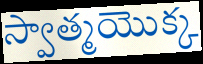
స్వాత్మయొక్క